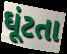
ઘૂંટતા